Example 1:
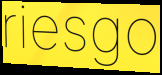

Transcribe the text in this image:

riesgo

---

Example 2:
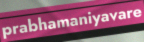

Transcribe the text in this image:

prabhamaniyavare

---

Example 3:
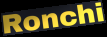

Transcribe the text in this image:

Ronchi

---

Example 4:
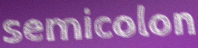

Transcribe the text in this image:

semicolon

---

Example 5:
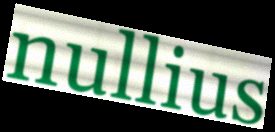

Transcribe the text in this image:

nullius